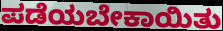
ಪಡೆಯಬೇಕಾಯಿತು